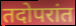
तदोपरांत